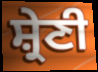
ਸ਼੍ਰੇਣੀ